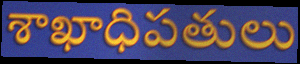
శాఖాధిపతులు